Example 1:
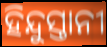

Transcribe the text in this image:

ହିନ୍ଦୁସ୍ତାନୀ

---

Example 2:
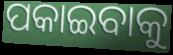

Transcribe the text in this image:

ପକାଇବାକୁ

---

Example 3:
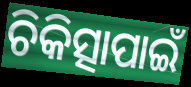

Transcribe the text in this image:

ଚିକିତ୍ସାପାଇଁ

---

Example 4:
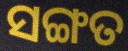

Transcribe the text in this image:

ସଙ୍ଗତ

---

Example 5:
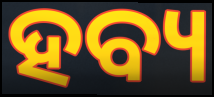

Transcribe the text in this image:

ହବ୍ୟ